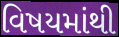
વિષયમાંથી